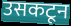
उसकटून